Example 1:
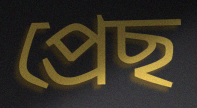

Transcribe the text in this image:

প্ৰেছ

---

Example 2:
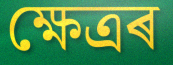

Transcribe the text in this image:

ক্ষেত্ৰৰ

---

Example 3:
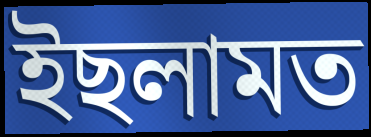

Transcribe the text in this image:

ইছলামত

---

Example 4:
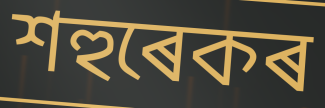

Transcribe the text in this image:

শহুৰেকৰ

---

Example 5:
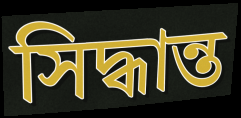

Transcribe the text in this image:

সিদ্ধান্ত